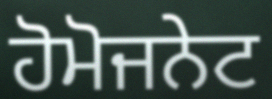
ਹੋਮੋਜਨੇਟ